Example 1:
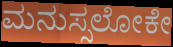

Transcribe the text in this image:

ಮನುಸ್ಸಲೋಕೇ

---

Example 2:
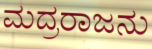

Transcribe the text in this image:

ಮದ್ರರಾಜನು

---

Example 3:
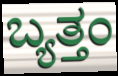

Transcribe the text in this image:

ಬ್ಯತ್ತಂ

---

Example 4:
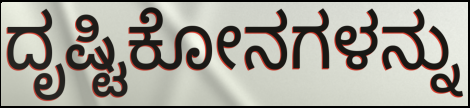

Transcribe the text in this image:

ದೃಷ್ಟಿಕೋನಗಳನ್ನು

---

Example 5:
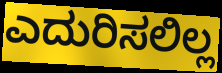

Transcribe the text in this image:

ಎದುರಿಸಲಿಲ್ಲ